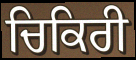
ਚਿਕਿਰੀ